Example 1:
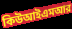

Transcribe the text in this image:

কিউআইএমআর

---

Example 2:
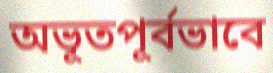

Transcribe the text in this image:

অভূতপূর্বভাবে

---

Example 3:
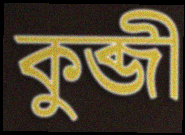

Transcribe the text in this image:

কুব্জী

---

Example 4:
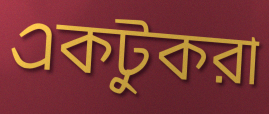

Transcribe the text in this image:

একটুকরা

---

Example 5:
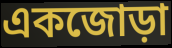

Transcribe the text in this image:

একজোড়া